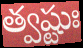
త్వష్టుః